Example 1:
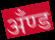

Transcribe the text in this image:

अँण्ड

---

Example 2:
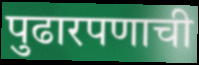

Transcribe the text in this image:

पुढारपणाची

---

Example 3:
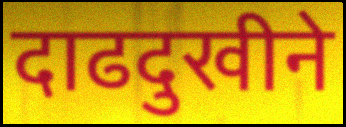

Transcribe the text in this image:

दाढदुखीने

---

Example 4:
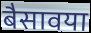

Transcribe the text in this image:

बैसावया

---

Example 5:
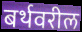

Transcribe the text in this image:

बर्थवरील